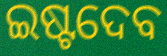
ଇଷ୍ଟଦେବ